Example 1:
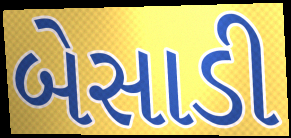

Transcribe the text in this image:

બેસાડી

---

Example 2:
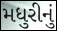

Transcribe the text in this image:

મધુરીનું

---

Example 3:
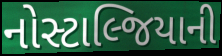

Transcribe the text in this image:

નોસ્ટાલ્જિયાની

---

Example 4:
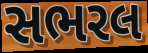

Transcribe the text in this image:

સભરલ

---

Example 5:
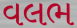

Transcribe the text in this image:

વલભ